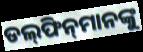
ଡଲ୍‍ଫିନ୍‍ମାନଙ୍କୁ